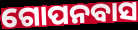
ଗୋପନବାସ